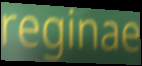
reginae